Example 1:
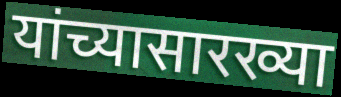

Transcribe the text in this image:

यांच्यासारख्या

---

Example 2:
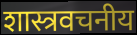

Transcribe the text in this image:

शास्त्रवचनीय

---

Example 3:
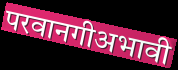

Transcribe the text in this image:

परवानगीअभावी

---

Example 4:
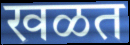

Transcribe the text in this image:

खळत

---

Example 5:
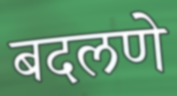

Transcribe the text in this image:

बदलणे